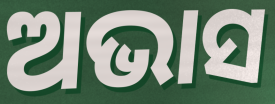
ଅଭାସ